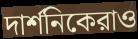
দার্শনিকেরাও